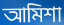
আমিশা